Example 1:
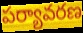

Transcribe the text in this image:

పర్యావరణ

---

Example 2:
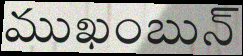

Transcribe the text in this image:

ముఖంబున్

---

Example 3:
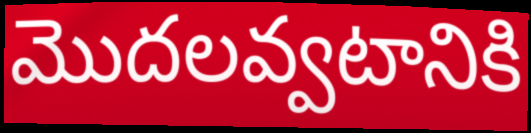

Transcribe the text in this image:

మొదలవ్వటానికి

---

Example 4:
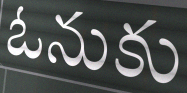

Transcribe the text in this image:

ఓనుకు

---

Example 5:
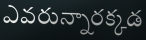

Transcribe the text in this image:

ఎవరున్నారక్కడ